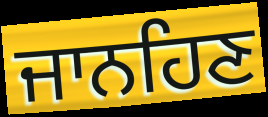
ਜਾਨਹਿਣ